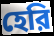
হেরি